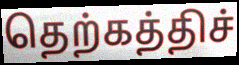
தெற்கத்திச்